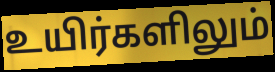
உயிர்களிலும்